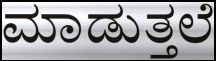
ಮಾಡುತ್ತಲೆ